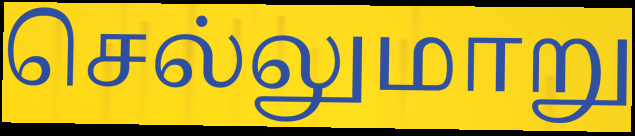
செல்லுமாறு